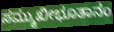
ಸಮ್ಮುಖೀಭೂತಾನಂ